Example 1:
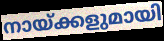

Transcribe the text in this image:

നായ്ക്കളുമായി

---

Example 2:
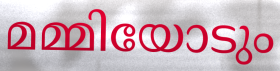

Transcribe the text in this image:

മമ്മിയോടും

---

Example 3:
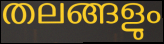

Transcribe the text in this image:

തലങ്ങളും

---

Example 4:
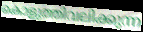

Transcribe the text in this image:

കൊളുത്തിവലിക്കുന്ന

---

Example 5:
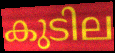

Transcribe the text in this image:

കുടില